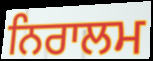
ਨਿਰਾਲਮ